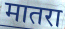
मातरा